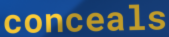
conceals